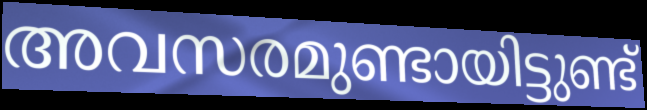
അവസരമുണ്ടായിട്ടുണ്ട്